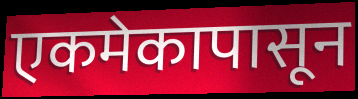
एकमेकापासून